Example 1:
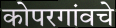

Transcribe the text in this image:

कोपरगांवचे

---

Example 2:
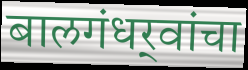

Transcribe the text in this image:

बालगंधर्वांचा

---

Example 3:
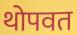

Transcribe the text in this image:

थोपवत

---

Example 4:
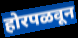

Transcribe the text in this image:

होरपळवून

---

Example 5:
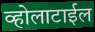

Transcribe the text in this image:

व्होलाटाईल